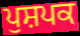
ਪੁਸ਼ਪਕ